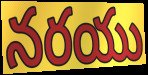
నరయు